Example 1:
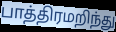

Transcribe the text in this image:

பாத்திரமறிந்து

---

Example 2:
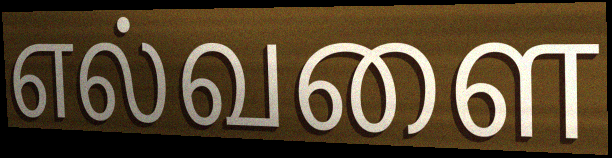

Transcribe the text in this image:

எல்வளை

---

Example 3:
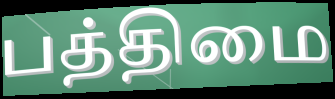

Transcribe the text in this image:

பத்திமை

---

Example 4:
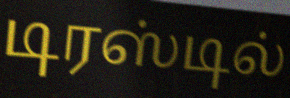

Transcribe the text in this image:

டிரஸ்டில்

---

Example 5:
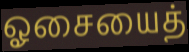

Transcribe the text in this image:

ஓசையைத்